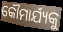
କୌମାର୍ଯ୍ୟକୁ